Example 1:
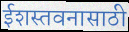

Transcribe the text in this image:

ईशस्तवनासाठी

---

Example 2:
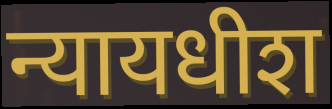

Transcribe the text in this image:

न्यायधीश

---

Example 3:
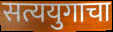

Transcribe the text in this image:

सत्ययुगाचा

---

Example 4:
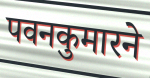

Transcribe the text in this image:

पवनकुमारने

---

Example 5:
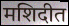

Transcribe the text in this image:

मशिदीत